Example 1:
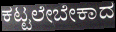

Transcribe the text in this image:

ಕಟ್ಟಲೇಬೇಕಾದ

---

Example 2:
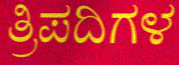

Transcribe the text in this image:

ತ್ರಿಪದಿಗಳ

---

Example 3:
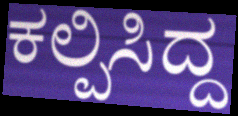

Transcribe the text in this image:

ಕಲ್ಪಿಸಿದ್ದ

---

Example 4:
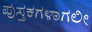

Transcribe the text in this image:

ಪುಸ್ತಕಗಳಾಗಲೀ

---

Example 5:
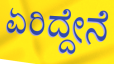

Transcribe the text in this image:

ಏರಿದ್ದೇನೆ